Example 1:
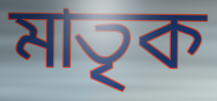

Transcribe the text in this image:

মাতৃক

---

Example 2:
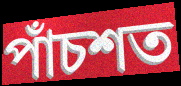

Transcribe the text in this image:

পাঁচশত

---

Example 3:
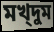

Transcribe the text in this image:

মখ্দুম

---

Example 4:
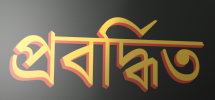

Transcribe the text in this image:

প্রবর্দ্ধিত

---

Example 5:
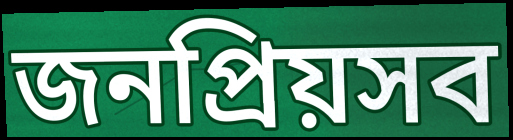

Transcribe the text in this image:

জনপ্রিয়সব